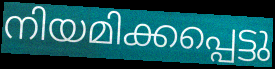
നിയമിക്കപ്പെട്ടു